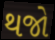
થજો